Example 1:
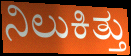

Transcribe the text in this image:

ನಿಲುಕಿತ್ತು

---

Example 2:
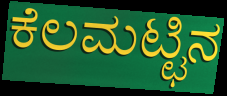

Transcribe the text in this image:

ಕೆಲಮಟ್ಟಿನ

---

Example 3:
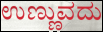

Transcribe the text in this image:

ಉಣ್ಣುವದು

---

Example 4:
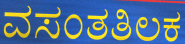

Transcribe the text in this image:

ವಸಂತತಿಲಕ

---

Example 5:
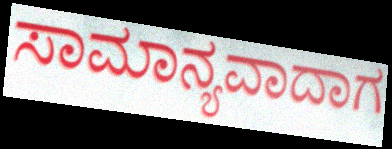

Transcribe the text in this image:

ಸಾಮಾನ್ಯವಾದಾಗ